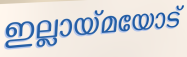
ഇല്ലായ്മയോട്